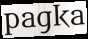
pagka